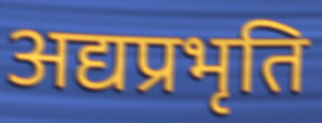
अद्यप्रभृति